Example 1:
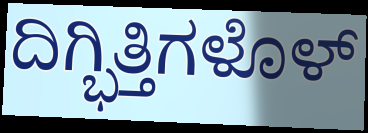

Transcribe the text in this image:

ದಿಗ್ಭಿತ್ತಿಗಳೊಳ್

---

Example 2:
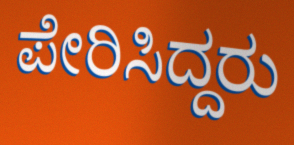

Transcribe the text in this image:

ಪೇರಿಸಿದ್ದರು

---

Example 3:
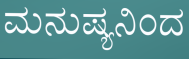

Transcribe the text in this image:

ಮನುಷ್ಯನಿಂದ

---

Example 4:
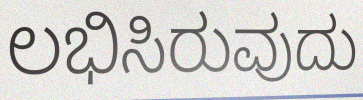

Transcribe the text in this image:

ಲಭಿಸಿರುವುದು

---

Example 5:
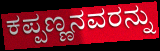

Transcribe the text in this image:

ಕಪ್ಪಣ್ಣನವರನ್ನು